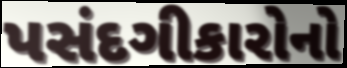
પસંદગીકારોનો